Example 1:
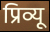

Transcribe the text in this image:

प्रिव्यू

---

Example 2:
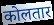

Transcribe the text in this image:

कोलतार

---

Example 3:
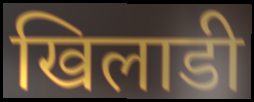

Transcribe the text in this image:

खिलाडी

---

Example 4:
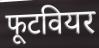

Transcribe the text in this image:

फूटवियर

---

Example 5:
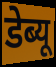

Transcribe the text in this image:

डेब्यू